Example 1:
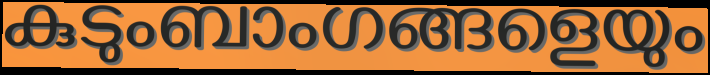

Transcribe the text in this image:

കുടുംബാംഗങ്ങളെയും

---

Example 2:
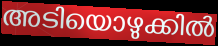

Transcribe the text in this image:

അടിയൊഴുക്കിൽ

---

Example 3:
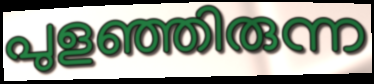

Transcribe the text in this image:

പുളഞ്ഞിരുന്ന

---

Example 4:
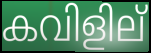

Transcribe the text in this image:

കവിളില്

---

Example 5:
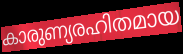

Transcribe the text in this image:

കാരുണ്യരഹിതമായ